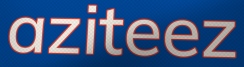
aziteez